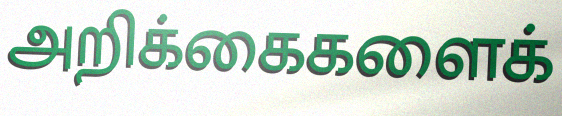
அறிக்கைகளைக்